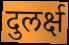
दुलर्क्ष